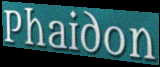
Phaidon